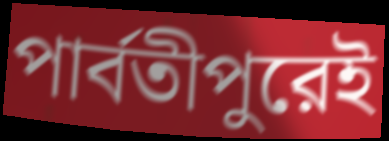
পার্বতীপুরেই